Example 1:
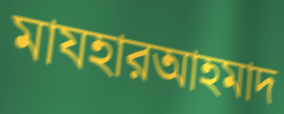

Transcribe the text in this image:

মাযহারআহমাদ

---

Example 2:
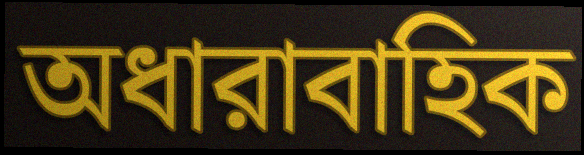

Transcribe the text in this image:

অধারাবাহিক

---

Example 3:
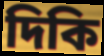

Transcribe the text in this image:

দিকি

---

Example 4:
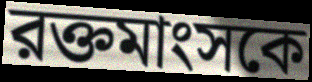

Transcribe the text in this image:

রক্তমাংসকে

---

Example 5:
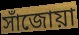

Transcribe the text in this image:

সাঁজোয়া